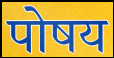
पोषय